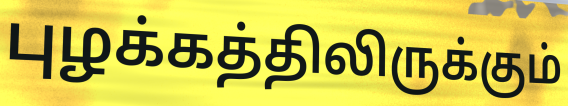
புழக்கத்திலிருக்கும்